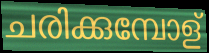
ചരിക്കുമ്പോള്